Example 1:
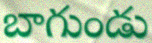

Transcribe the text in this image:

బాగుండు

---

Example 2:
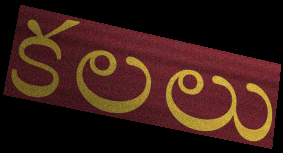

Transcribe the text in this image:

కలలు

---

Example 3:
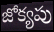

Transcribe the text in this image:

జోక్యపు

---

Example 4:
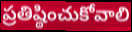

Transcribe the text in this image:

ప్రతిష్ఠించుకోవాలి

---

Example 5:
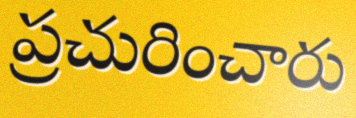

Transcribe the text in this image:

ప్రచురించారు